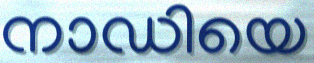
നാഡിയെ